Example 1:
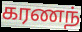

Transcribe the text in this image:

கரணந்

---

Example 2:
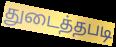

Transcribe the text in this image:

துடைத்தபடி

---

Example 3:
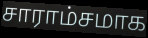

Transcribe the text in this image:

சாராம்சமாக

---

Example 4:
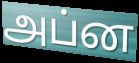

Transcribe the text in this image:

அப்ன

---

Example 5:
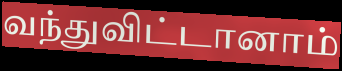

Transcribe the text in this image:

வந்துவிட்டானாம்